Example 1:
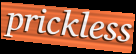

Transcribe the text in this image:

prickless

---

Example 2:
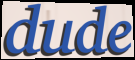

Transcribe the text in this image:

dude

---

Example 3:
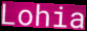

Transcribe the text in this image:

Lohia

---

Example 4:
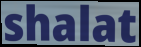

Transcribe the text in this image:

shalat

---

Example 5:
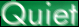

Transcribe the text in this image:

Quiet